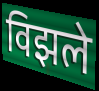
विझले